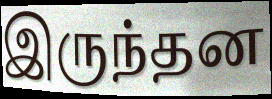
இருந்தன